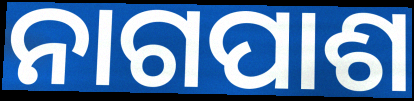
ନାଗପାଶ